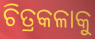
ଚିତ୍ରକଳାକୁ